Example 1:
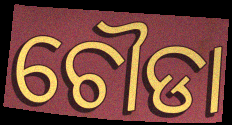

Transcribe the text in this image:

ଚୌଡା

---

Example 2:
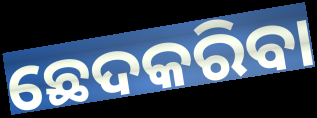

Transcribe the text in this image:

ଛେଦକରିବା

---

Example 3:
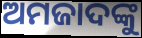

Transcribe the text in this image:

ଅମଜାଦଙ୍କୁ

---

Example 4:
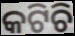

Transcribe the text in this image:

କଟିଚି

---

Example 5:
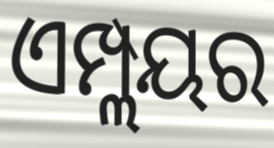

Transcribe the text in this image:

ଏମ୍ପ୍ଲୟର